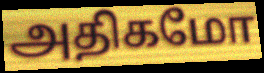
அதிகமோ